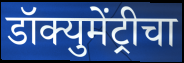
डॉक्युमेंट्रीचा